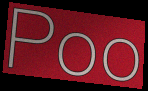
Poo